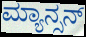
ಮ್ಯಾನ್ಸನ್